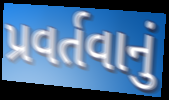
પ્રવર્તવાનું